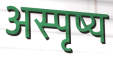
अस्पृष्य